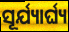
ସୂର୍ଯ୍ୟାର୍ଘ୍ୟ